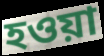
হওয়া